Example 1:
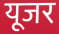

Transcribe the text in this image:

यूजर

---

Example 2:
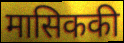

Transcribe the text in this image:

मासिककी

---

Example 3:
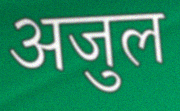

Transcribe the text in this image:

अजुल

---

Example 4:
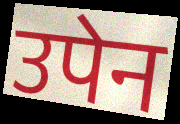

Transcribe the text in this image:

उपेन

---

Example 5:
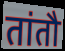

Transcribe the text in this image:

तांतौ